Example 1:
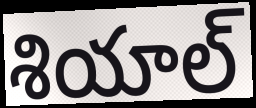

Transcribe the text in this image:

శియాల్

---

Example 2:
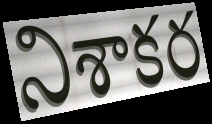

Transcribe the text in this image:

నిశాకర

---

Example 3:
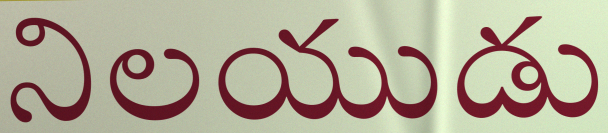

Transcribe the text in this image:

నిలయుడు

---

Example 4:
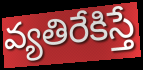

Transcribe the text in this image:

వ్యతిరేకిస్తే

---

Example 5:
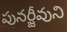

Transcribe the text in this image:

పునర్జీవుని